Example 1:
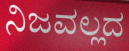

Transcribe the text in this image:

ನಿಜವಲ್ಲದ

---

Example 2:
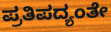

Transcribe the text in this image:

ಪ್ರತಿಪದ್ಯಂತೇ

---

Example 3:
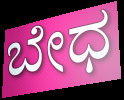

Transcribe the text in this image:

ಬೇಧ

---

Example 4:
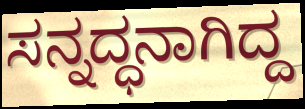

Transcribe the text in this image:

ಸನ್ನದ್ಧನಾಗಿದ್ದ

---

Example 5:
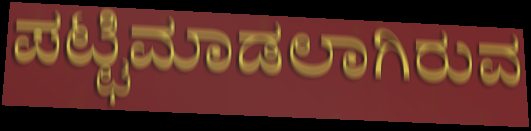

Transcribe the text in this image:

ಪಟ್ಟಿಮಾಡಲಾಗಿರುವ